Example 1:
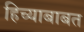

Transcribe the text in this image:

हिच्याबाबत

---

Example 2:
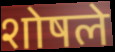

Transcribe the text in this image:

शोषले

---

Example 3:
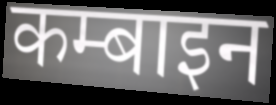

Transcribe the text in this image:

कम्बाइन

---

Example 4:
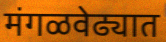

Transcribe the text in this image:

मंगळवेढ्यात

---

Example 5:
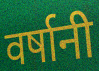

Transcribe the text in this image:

वर्षानी